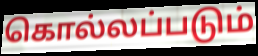
கொல்லப்படும்